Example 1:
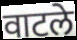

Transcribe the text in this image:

वाटले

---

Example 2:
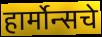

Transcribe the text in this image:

हार्मोन्सचे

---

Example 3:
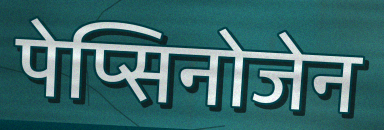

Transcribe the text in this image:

पेप्सिनोजेन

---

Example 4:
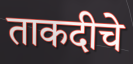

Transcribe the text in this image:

ताकदीचे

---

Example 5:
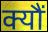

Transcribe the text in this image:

क्यौं